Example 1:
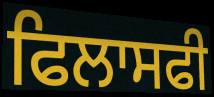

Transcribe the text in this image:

ਫਿਲਾਸਫੀ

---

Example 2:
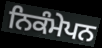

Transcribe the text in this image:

ਨਿਕੰਮੇਪਨ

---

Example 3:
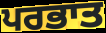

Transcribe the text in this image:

ਪਰਭਾਤ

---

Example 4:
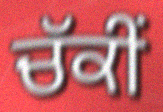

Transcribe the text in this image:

ਚੱਕੀਂ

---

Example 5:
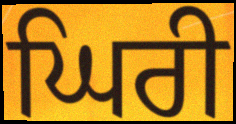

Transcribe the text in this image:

ਘਿਰੀ